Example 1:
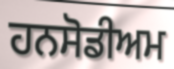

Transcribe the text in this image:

ਹਨਸੋਡੀਅਮ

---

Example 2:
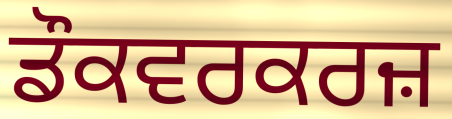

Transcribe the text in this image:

ਡੌਕਵਰਕਰਜ਼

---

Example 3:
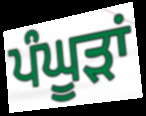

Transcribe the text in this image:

ਪੰਘੂੜਾਂ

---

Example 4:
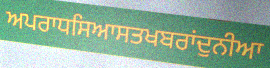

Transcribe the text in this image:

ਅਪਰਾਧਸਿਆਸਤਖਬਰਾਂਦੁਨੀਆ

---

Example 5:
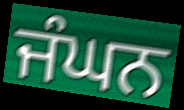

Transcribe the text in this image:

ਜੰਘਨ